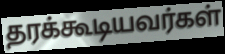
தரக்கூடியவர்கள்